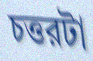
চত্তরটা